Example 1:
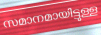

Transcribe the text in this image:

സമാനമായിട്ടുള്ള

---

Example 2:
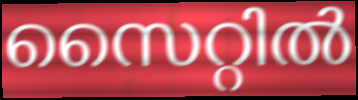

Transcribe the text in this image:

സൈറ്റിൽ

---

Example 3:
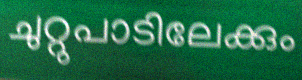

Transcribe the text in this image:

ചുറ്റുപാടിലേക്കും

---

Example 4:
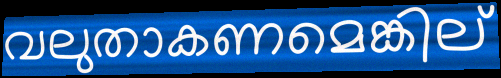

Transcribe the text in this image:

വലുതാകണമെങ്കില്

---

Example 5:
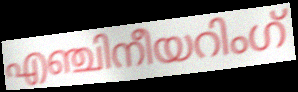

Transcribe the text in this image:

എഞ്ചിനീയറിംഗ്